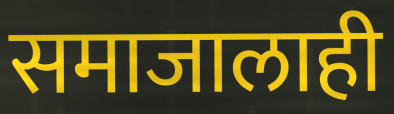
समाजालाही